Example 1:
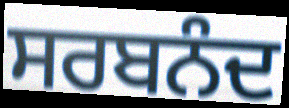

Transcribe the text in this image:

ਸਰਬਨੰਦ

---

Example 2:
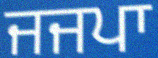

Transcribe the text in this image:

ਜਜਪਾ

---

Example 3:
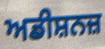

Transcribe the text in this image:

ਅਡੀਸ਼ਨਜ਼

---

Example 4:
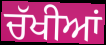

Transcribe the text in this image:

ਚੱਖੀਆਂ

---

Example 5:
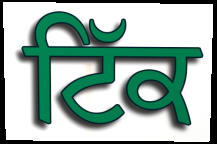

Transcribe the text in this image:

ਟਿੱਕ